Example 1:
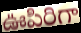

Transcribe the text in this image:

ఊపిరిగా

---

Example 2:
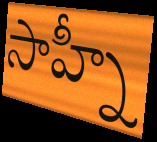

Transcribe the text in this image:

సాహ్నీ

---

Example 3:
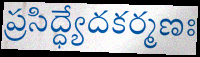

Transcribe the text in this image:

ప్రసిద్ధ్యేదకర్మణః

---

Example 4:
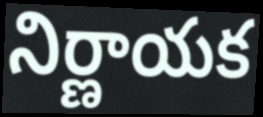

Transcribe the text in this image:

నిర్ణాయక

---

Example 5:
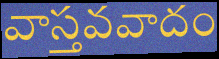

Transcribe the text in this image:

వాస్తవవాదం